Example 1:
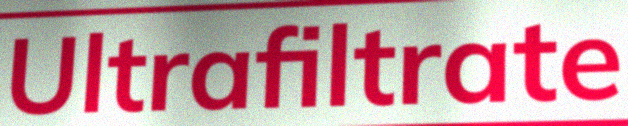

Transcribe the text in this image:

Ultrafiltrate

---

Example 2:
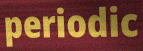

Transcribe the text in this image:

periodic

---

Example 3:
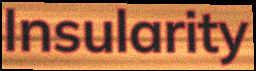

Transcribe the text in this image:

Insularity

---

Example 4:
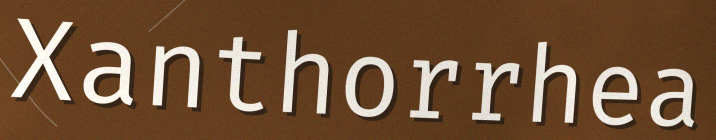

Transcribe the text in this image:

Xanthorrhea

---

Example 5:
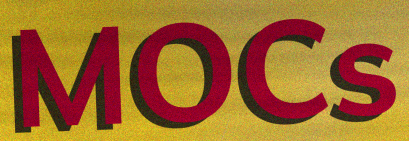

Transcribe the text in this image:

MOCs